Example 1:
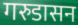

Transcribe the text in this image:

गरुडासन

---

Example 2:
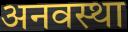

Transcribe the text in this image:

अनवस्था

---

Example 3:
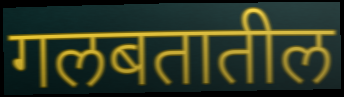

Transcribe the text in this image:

गलबतातील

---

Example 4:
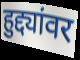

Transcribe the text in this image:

हुद्द्यांवर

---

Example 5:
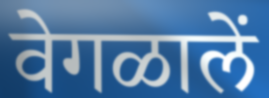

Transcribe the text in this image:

वेगळालें